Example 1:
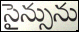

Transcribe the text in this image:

సైన్సును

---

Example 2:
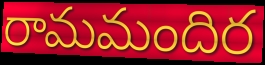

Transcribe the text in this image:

రామమందిర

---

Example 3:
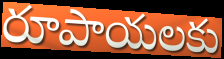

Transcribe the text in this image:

రూపాయలకు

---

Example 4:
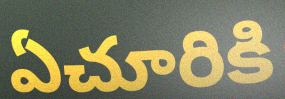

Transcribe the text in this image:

ఏచూరికి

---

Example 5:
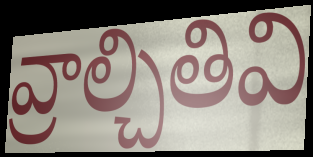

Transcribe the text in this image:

వ్రాల్చితివి